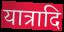
यात्रादि